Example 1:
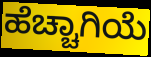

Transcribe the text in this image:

ಹೆಚ್ಚಾಗಿಯೆ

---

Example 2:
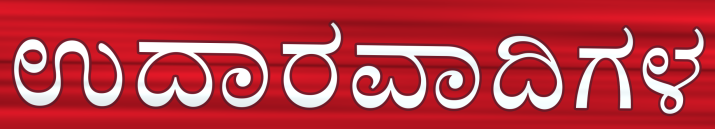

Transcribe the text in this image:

ಉದಾರವಾದಿಗಳ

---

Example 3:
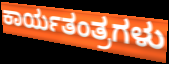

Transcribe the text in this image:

ಕಾರ್ಯತಂತ್ರಗಳು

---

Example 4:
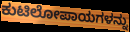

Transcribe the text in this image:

ಕುಟಿಲೋಪಾಯಗಳನ್ನು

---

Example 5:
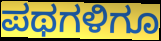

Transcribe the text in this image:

ಪಥಗಳಿಗೂ